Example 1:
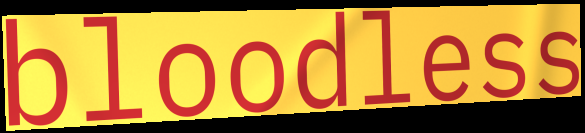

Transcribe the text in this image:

bloodless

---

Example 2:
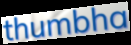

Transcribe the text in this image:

thumbha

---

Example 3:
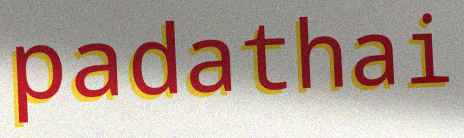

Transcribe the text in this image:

padathai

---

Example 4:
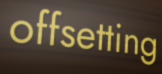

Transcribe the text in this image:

offsetting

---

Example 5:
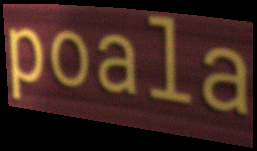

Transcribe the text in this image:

poala